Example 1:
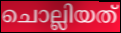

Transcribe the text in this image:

ചൊല്ലിയത്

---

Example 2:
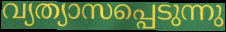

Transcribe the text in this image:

വ്യത്യാസപ്പെടുന്നു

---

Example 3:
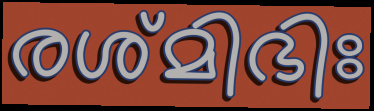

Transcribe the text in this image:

രശ്മിഭിഃ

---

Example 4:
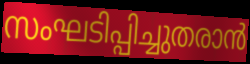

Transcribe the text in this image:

സംഘടിപ്പിച്ചുതരാൻ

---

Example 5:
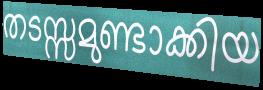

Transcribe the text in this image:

തടസ്സമുണ്ടാക്കിയ